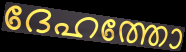
ദേഹത്തോ